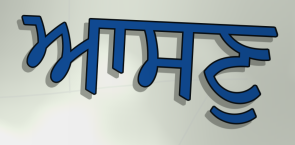
ਆਸਣੁ